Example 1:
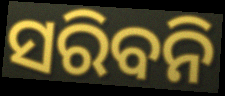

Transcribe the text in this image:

ସରିବନି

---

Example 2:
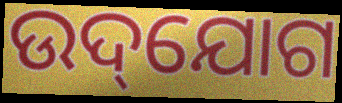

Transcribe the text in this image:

ଉଦ୍‌ଯୋଗ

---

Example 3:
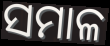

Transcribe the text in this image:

ସମାଳ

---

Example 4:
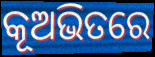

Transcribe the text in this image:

କୂଅଭିତରେ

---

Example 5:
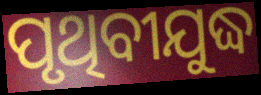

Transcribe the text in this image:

ପୃଥିବୀଯୁଦ୍ଧ